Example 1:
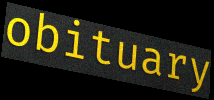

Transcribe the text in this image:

obituary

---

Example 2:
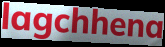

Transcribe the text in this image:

lagchhena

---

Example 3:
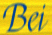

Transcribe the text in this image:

Bei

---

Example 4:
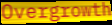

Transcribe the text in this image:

Overgrowth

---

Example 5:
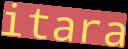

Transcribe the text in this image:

itara